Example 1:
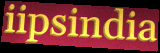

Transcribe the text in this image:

iipsindia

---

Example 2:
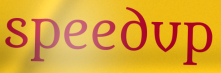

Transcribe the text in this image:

speedup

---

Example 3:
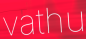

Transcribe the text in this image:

vathu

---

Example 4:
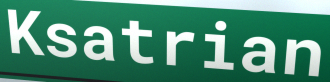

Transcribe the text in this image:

Ksatrian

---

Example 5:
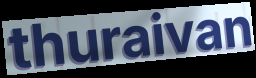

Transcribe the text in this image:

thuraivan